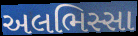
અલભિસ્સા